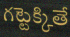
గట్టెక్కితే